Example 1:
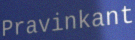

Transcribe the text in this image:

Pravinkant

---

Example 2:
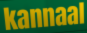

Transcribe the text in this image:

kannaal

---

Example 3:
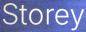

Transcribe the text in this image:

Storey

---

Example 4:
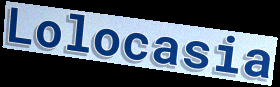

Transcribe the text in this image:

Lolocasia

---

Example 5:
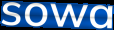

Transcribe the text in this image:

sowa